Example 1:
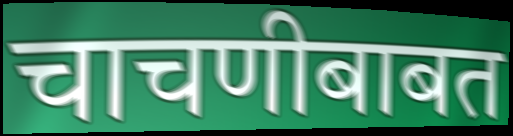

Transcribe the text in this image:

चाचणीबाबत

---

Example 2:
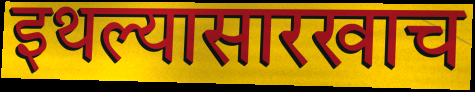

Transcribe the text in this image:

इथल्यासारखाच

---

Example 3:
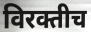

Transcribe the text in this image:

विरक्तीच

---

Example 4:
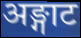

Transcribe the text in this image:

अङ्गाट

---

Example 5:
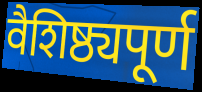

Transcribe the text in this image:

वैशिष्ठ्यपूर्ण